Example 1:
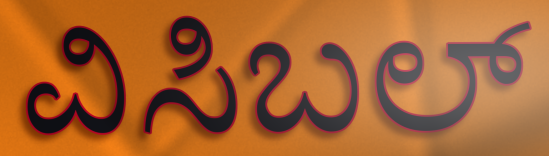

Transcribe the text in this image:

ವಿಸಿಬಲ್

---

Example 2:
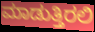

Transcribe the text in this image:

ಮಾಡುತ್ತಿರಲಿ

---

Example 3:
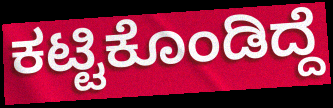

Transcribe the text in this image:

ಕಟ್ಟಿಕೊಂಡಿದ್ದೆ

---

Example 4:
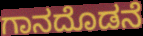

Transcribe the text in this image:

ಗಾನದೊಡನೆ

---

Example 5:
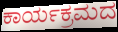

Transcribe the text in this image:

ಕಾರ್ಯಕ್ರಮದ